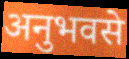
अनुभवसे